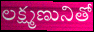
లక్ష్మణునితో